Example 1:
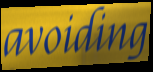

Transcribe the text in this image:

avoiding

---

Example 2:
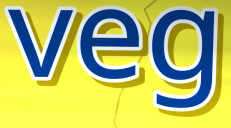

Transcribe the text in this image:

veg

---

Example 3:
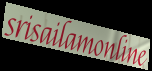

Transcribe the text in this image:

srisailamonline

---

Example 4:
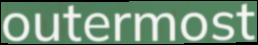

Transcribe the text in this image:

outermost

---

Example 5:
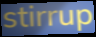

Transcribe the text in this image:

stirrup